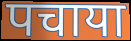
पचाया